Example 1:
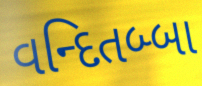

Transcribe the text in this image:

વન્દિતબ્બા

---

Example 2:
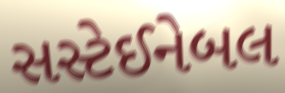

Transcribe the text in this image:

સસ્ટેઈનેબલ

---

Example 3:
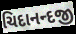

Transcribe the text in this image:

ચિદાનન્દજી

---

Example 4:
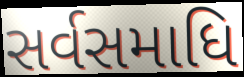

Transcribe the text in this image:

સર્વસમાધિ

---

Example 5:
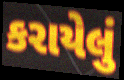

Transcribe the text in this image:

કરાયેલું